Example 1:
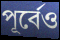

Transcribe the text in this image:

পূৰ্বেও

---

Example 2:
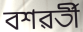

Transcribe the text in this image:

বশৱৰ্তী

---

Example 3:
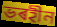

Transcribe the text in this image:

ভৰহীন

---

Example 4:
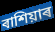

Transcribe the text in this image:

ৰাশিয়াৰ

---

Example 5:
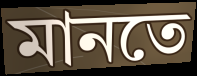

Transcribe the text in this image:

মানতে